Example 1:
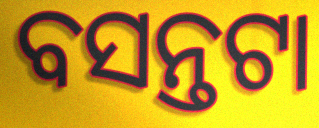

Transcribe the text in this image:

ବସନ୍ତଟା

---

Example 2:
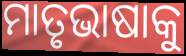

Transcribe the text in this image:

ମାତୃଭାଷାକୁ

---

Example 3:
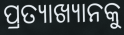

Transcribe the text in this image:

ପ୍ରତ୍ୟାଖ୍ୟାନକୁ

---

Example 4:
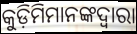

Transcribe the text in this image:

କୁଡ଼ିମିମାନଙ୍କଦ୍ୱାରା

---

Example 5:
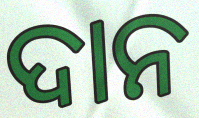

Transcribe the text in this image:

ଦାନ